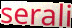
serali